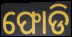
ଫୋଡି